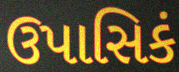
ઉપાસિકં